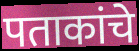
पताकांचे